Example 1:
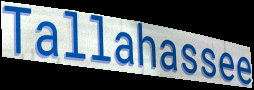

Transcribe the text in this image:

Tallahassee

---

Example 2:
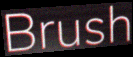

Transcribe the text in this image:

Brush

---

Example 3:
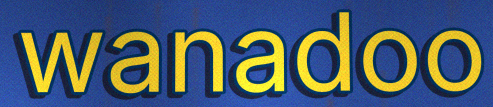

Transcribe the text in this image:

wanadoo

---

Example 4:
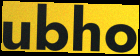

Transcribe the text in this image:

ubho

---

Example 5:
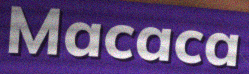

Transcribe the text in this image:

Macaca